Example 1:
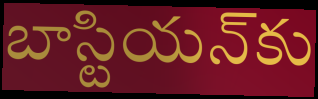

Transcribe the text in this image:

బాస్టియన్‌కు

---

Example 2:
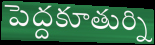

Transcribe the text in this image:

పెద్దకూతుర్ని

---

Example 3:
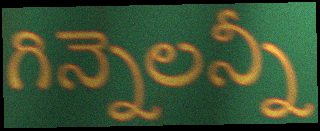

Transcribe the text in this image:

గిన్నెలన్నీ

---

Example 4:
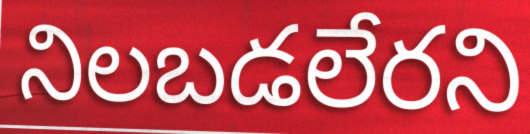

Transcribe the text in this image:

నిలబడలేరని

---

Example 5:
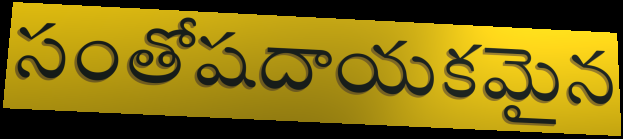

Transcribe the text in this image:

సంతోషదాయకమైన